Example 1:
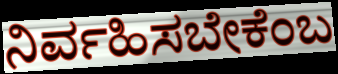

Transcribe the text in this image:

ನಿರ್ವಹಿಸಬೇಕೆಂಬ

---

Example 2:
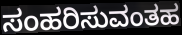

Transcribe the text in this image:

ಸಂಹರಿಸುವಂತಹ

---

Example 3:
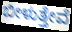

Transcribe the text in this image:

ಬೀಳುತ್ತೇವೆ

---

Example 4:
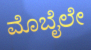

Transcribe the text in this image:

ಮೊಬೈಲೇ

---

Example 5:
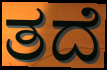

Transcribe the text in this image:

ತದೆ